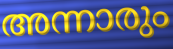
അന്നാരും